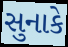
સુનાકે